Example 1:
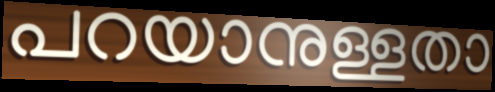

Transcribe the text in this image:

പറയാനുള്ളതാ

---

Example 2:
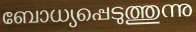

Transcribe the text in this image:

ബോധ്യപ്പെടുത്തുന്നു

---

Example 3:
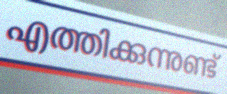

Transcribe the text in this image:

എത്തിക്കുന്നുണ്ട്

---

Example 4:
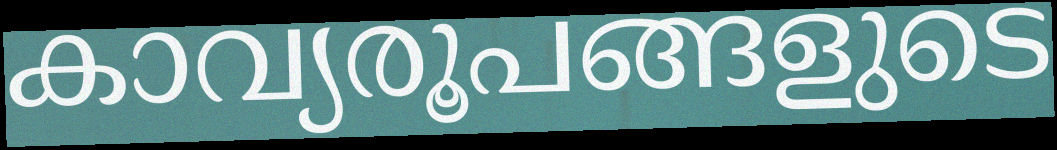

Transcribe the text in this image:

കാവ്യരൂപങ്ങളുടെ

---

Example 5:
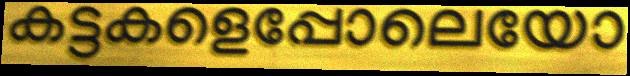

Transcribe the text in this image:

കട്ടകളെപ്പോലെയോ